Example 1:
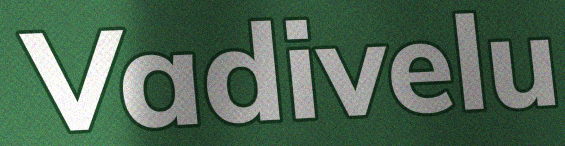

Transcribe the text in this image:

Vadivelu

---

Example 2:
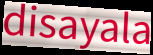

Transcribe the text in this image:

disayala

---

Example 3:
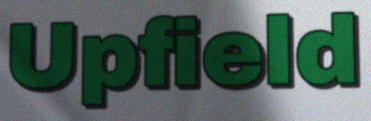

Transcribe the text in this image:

Upfield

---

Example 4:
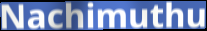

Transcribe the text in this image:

Nachimuthu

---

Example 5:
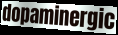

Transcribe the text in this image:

dopaminergic